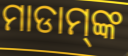
ମାଡାମ୍‌ଙ୍କ